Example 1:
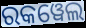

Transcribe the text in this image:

ରକୱେଲ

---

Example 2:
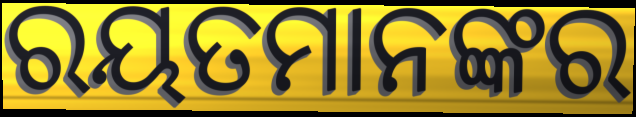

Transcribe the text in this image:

ରୟତମାନଙ୍କର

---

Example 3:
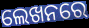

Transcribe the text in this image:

ଲେଖନରେ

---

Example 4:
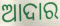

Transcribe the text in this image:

ଆଦାର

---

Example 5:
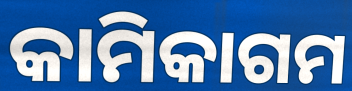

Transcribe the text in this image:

କାମିକାଗମ